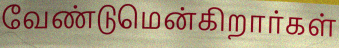
வேண்டுமென்கிறார்கள்